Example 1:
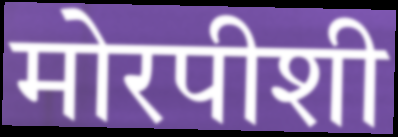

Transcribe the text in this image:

मोरपीशी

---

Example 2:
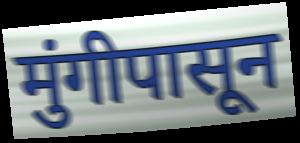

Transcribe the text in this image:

मुंगीपासून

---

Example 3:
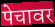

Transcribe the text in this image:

पेचावर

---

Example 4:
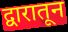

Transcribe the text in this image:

द्वारातून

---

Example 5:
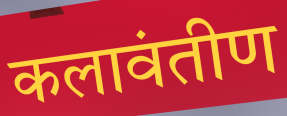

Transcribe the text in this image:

कलावंतीण